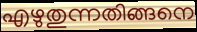
എഴുതുന്നതിങ്ങനെ